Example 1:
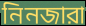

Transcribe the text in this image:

নিনজারা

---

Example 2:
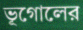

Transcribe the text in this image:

ভূগোলের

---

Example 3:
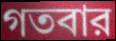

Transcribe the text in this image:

গতবার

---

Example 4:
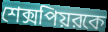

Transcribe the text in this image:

শেক্সপিয়রকে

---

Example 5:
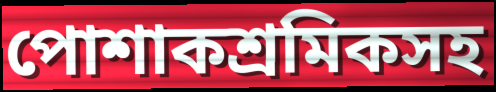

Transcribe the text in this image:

পোশাকশ্রমিকসহ